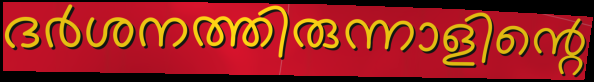
ദർശനത്തിരുന്നാളിന്റെ